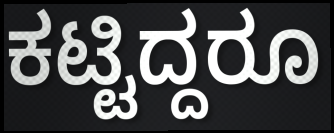
ಕಟ್ಟಿದ್ದರೂ